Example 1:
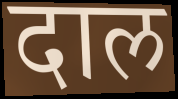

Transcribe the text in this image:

दाल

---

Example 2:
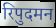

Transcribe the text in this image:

रिपुदमन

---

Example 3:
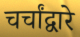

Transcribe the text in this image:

चर्चांद्वारे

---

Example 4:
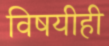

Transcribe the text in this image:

विषयीही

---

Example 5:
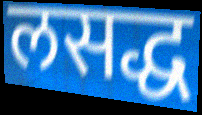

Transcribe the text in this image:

लसद्ध